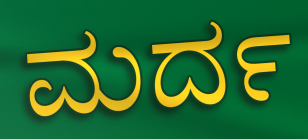
ಮರ್ದ